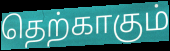
தெற்காகும்